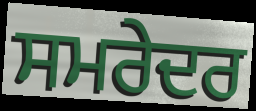
ਸਮਰੇਦਰ